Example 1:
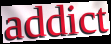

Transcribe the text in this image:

addict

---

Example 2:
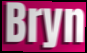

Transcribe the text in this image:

Bryn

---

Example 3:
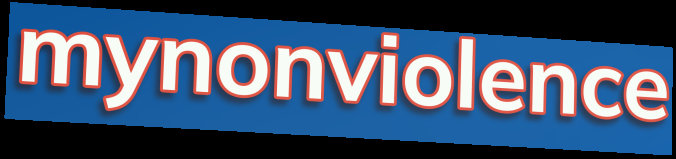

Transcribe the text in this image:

mynonviolence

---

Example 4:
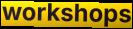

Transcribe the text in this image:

workshops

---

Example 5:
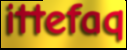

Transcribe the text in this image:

ittefaq